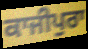
ਕਾਜੀਪੁਰਾ